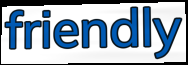
friendly